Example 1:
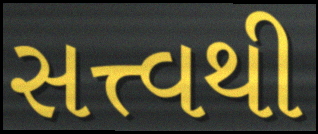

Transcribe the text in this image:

સત્ત્વથી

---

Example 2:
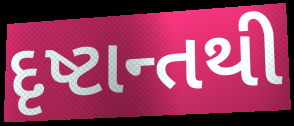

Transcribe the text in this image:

દૃષ્ટાન્તથી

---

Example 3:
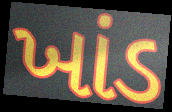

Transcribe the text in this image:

ખાંડ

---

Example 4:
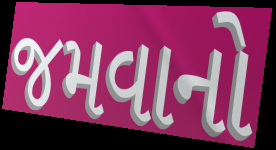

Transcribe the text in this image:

જમવાનો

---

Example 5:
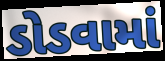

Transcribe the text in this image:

ડોડવામાં